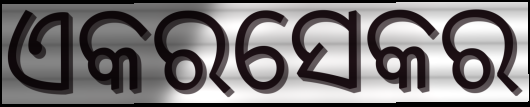
ଏକରସେକର